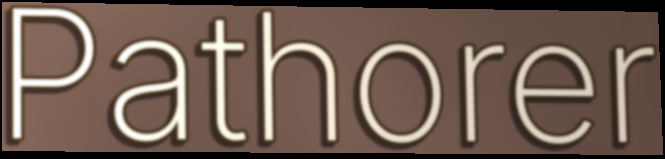
Pathorer